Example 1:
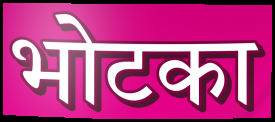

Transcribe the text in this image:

भोटका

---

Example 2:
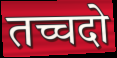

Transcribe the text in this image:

तच्चदो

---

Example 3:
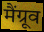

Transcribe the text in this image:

मैंग्रूव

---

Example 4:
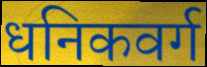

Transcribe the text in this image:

धनिकवर्ग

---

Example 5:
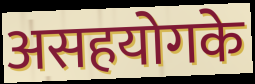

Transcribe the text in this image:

असहयोगके